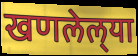
खणलेल्या